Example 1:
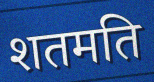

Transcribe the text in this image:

शतमति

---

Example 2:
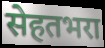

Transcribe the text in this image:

सेहतभरा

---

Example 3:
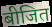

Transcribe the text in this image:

बीजित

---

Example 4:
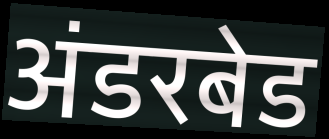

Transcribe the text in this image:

अंडरबेड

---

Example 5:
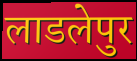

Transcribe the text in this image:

लाडलेपुर